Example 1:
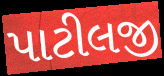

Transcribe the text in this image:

પાટીલજી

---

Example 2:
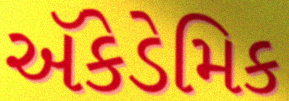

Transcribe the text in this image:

ઍકેડેમિક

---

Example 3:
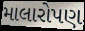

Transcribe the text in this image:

માલારોપણ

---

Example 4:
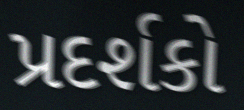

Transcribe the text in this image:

પ્રદર્શકો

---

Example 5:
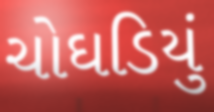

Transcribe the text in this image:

ચોઘડિયું